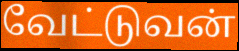
வேட்டுவன்